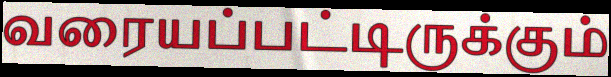
வரையப்பட்டிருக்கும்